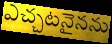
ఎచ్చటనైనను